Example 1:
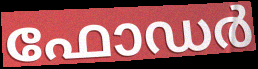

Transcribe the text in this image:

ഫോഡർ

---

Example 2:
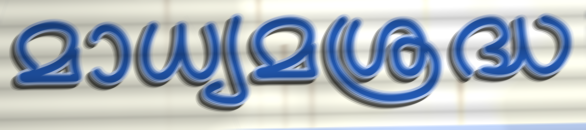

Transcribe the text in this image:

മാധ്യമശ്രദ്ധ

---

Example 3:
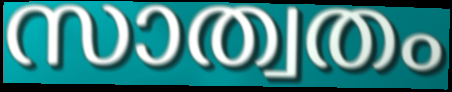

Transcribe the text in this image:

സാത്വതം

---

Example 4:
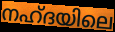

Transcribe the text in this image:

നഹ്ദയിലെ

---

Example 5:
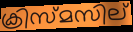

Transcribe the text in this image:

ക്രിസ്മസില്